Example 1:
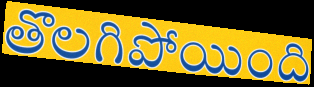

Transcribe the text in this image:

తొలగిపోయింది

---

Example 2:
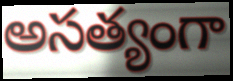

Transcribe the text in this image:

అసత్యంగా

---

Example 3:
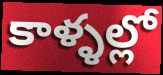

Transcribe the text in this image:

కాళ్ళల్లో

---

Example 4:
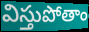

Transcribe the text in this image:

విస్తుపోతాం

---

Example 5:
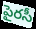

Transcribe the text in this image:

పైరసీ